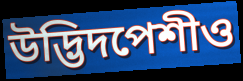
উদ্ভিদপেশীও